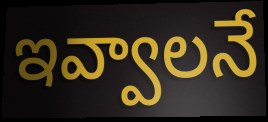
ఇవ్వాలనే